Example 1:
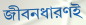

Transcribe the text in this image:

জীবনধারণই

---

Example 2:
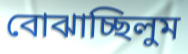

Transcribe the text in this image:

বোঝাচ্ছিলুম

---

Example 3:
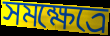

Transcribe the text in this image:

সমক্ষেত্রে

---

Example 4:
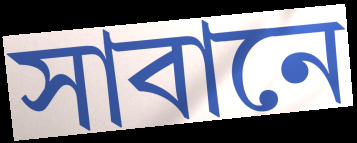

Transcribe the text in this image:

সাবানে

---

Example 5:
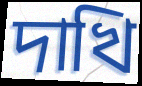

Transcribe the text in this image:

দাখি